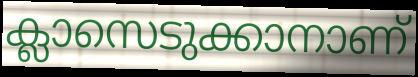
ക്ലാസെടുക്കാനാണ്